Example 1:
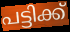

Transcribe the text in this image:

പട്ടിക്ക്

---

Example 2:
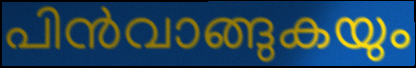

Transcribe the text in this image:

പിൻവാങ്ങുകയും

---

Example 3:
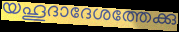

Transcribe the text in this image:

യഹൂദാദേശത്തേക്കു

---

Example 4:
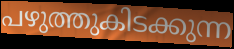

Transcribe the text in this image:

പഴുത്തുകിടക്കുന്ന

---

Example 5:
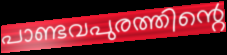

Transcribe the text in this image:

പാണ്ടവപുരത്തിന്റെ